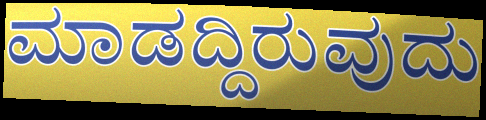
ಮಾಡದ್ದಿರುವುದು